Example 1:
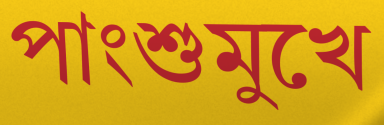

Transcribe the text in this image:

পাংশুমুখে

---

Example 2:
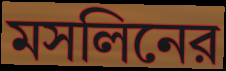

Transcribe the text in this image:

মসলিনের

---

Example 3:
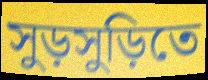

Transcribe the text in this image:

সুড়সুড়িতে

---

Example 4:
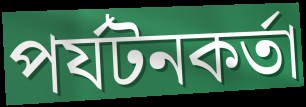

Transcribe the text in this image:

পর্যটনকর্তা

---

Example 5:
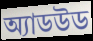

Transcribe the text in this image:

অ্যাডউড